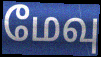
மேவு